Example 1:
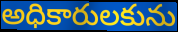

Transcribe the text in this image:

అధికారులకును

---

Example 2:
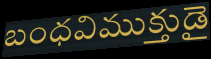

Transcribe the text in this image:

బంధవిముక్తుడై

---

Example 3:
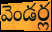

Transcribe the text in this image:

వెండర్ల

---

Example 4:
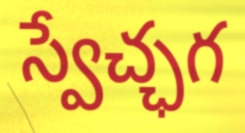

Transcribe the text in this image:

స్వేచ్ఛగ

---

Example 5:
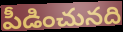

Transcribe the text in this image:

పీడించునది